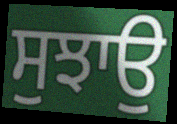
ਸੁਝਾਉ